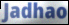
Jadhao